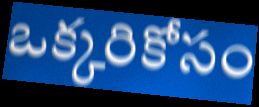
ఒక్కరికోసం